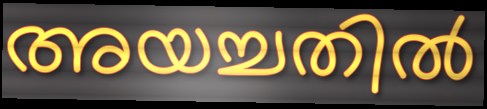
അയച്ചതിൽ